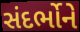
સંદર્ભોને